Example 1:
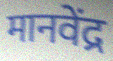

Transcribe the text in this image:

मानवेंद्र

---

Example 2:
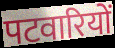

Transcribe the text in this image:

पटवारियों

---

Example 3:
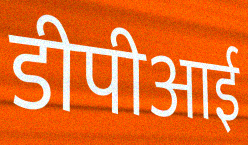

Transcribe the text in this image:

डीपीआई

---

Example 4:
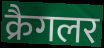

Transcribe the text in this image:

क्रैगलर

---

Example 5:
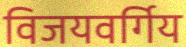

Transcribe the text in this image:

विजयवर्गिय